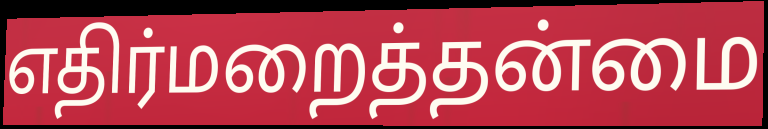
எதிர்மறைத்தன்மை